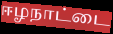
ஈழநாட்டை